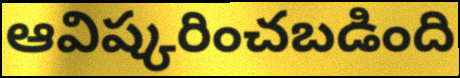
ఆవిష్కరించబడింది